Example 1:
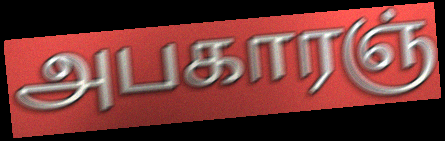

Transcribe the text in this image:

அபகாரஞ்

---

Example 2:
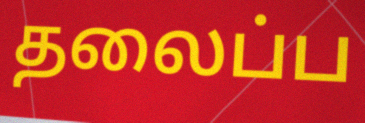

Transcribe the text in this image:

தலைப்ப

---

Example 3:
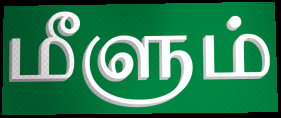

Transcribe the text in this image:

மீளும்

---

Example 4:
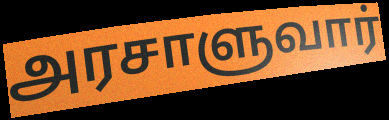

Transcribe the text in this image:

அரசாளுவார்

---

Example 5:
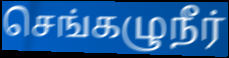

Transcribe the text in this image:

செங்கழுநீர்